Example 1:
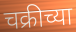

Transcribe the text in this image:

चक्रीच्या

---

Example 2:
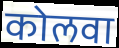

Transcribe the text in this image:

कोलवा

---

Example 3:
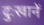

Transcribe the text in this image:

दुःखानें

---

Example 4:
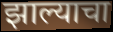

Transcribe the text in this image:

झाल्‍याचा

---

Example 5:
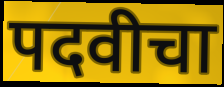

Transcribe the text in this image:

पदवीचा